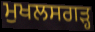
ਮੁਖਲਸਗੜ੍ਹ